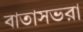
বাতাসভরা